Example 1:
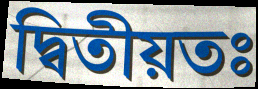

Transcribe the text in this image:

দ্বিতীয়তঃ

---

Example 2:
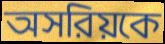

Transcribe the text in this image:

অসরিয়কে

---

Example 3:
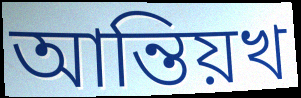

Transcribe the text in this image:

আন্তিয়খ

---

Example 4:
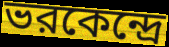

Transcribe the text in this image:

ভরকেন্দ্রে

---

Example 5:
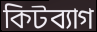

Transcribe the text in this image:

কিটব্যাগ